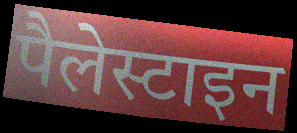
पैलेस्टाइन